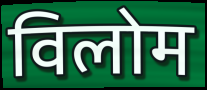
विलोम